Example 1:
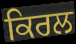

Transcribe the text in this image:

ਕਿਰਲ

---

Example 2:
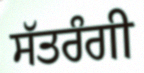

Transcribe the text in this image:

ਸੱਤਰੰਗੀ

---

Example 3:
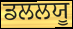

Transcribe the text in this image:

ਡਲਲਯੂ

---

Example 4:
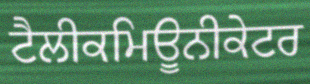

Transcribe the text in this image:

ਟੈਲੀਕਮਿਊਨੀਕੇਟਰ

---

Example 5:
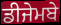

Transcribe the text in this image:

ਡੀਜੇਮਬੇ